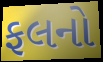
ફલનો